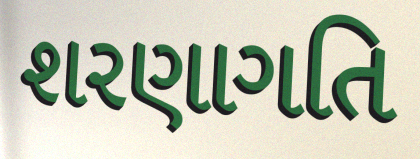
શરણાગતિ